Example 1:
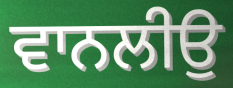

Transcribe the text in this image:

ਵਾਨਲੀਉ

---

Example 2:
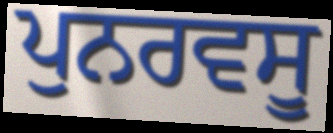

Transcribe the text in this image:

ਪੁਨਰਵਸੂ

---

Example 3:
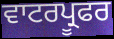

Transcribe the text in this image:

ਵਾਟਰਪ੍ਰੂਫਰ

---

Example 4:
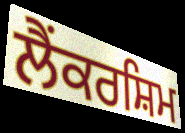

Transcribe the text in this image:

ਲੈਂਕਰਸ਼ਿਮ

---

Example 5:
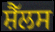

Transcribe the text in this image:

ਸ਼ੈੱਲਸ